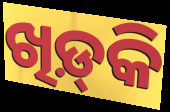
ଖିଡ଼୍‌କି